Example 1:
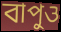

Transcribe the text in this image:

বাপুও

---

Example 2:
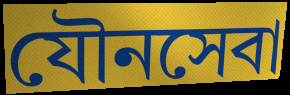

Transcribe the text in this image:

যৌনসেবা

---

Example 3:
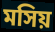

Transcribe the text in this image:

মসিয়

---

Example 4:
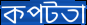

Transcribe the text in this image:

কপটতা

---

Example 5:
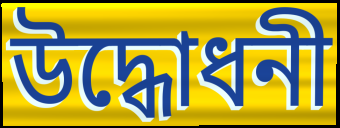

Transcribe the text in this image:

উদ্ধোধনী